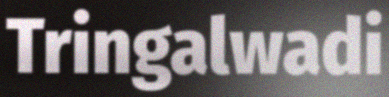
Tringalwadi